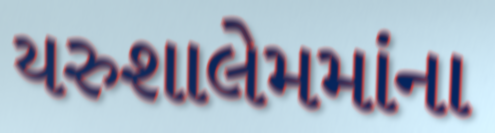
યરુશાલેમમાંના